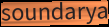
soundarya